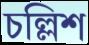
চল্লিশ